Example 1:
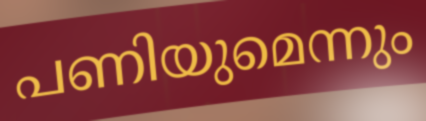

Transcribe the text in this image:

പണിയുമെന്നും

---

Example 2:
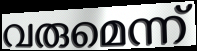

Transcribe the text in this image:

വരുമെന്ന്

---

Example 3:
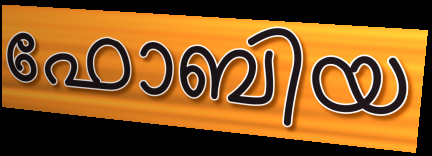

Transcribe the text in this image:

ഫോബിയ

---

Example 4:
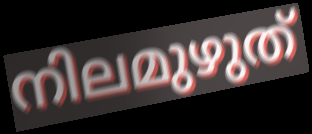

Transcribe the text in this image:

നിലമുഴുത്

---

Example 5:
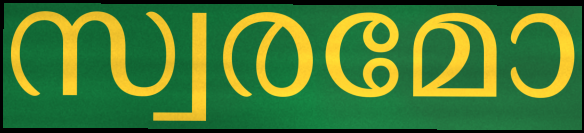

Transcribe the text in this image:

സ്വരമോ